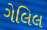
ગેલિલ